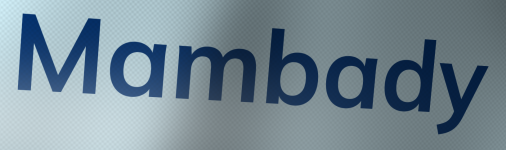
Mambady